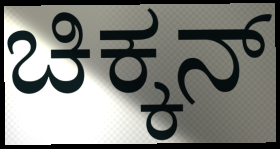
ಚಿಕ್ಕನ್